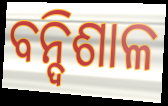
ବନ୍ଦିଶାଳ